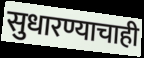
सुधारण्याचाही